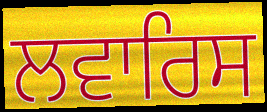
ਲਵਾਰਿਸ